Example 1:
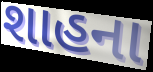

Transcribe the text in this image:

શાહના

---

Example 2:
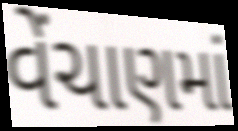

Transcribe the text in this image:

વેંચાણમાં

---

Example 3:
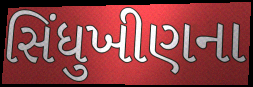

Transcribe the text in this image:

સિંધુખીણના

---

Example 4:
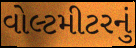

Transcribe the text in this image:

વોલ્ટમીટરનું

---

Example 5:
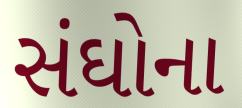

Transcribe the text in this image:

સંઘોના